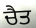
ਚੈਤ